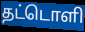
தட்டொளி